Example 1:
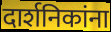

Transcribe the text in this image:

दार्शनिकांना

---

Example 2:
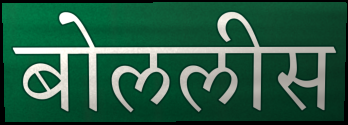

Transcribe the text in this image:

बोललीस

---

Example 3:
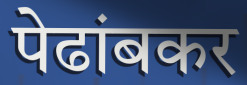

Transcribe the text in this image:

पेढांबकर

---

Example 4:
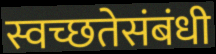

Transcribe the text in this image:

स्वच्छतेसंबंधी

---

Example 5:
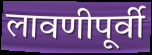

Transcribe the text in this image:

लावणीपूर्वी